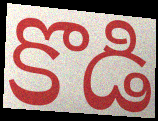
కొడి